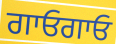
ਗਾਓਗਾਓ